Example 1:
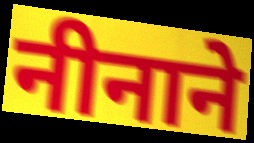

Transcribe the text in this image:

नीनाने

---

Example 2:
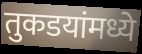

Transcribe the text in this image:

तुकडयांमध्ये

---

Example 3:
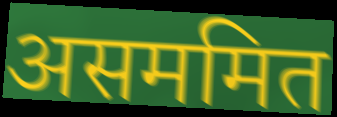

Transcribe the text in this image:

असममित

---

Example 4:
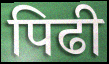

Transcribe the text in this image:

पिढी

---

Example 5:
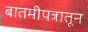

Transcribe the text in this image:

बातमीपत्रातून